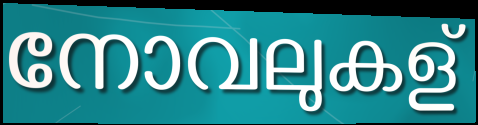
നോവലുകള്